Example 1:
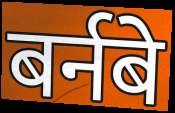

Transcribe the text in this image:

बर्नबे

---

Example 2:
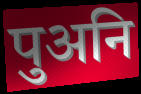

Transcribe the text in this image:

पुअनि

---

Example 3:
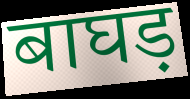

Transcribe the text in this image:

बाघड़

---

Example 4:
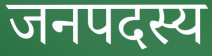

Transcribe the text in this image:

जनपदस्य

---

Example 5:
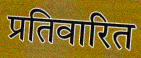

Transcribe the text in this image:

प्रतिवारित